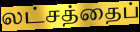
லட்சத்தைப்